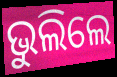
ଭୁଲିଲେ